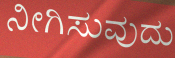
ನೀಗಿಸುವುದು